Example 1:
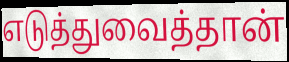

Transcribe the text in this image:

எடுத்துவைத்தான்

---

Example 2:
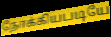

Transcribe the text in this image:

நோக்கியபடியே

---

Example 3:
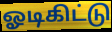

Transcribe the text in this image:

ஓடிகிட்டு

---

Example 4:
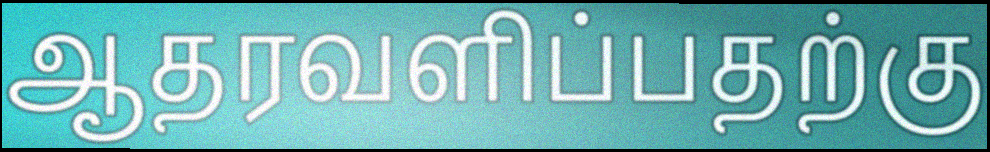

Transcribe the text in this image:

ஆதரவளிப்பதற்கு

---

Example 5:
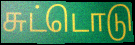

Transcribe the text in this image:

சுட்டொடு